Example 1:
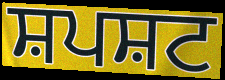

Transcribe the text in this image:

ਸ਼ਪਸ਼ਟ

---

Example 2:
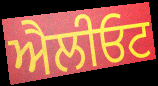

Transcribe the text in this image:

ਐਲੀਓਟ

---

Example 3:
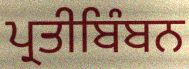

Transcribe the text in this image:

ਪ੍ਰਤੀਬਿੰਬਨ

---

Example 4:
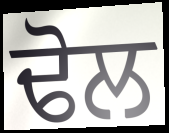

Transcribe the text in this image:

ਢੋਲ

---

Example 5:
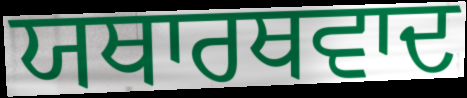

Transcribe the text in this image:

ਯਥਾਰਥਵਾਦ